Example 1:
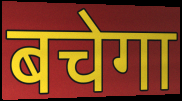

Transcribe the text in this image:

बचेगा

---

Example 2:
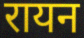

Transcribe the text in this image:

रायन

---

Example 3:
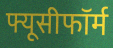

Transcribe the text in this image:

फ्यूसीफॉर्म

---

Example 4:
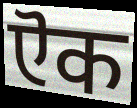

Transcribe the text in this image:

ऎक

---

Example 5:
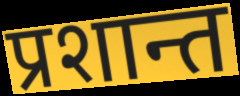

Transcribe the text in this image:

प्रशान्त